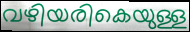
വഴിയരികെയുള്ള